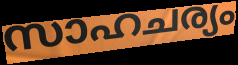
സാഹചര്യം